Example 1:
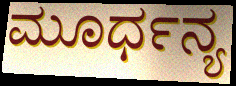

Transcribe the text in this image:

ಮೂರ್ಧನ್ಯ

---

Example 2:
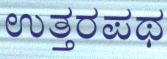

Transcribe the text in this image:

ಉತ್ತರಪಥ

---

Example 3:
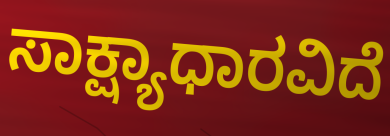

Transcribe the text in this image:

ಸಾಕ್ಷ್ಯಾಧಾರವಿದೆ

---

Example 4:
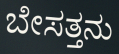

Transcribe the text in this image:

ಬೇಸತ್ತನು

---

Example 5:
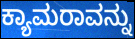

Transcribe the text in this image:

ಕ್ಯಾಮರಾವನ್ನು